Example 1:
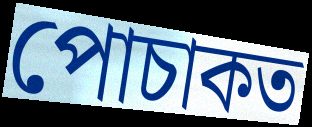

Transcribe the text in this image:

পোচাকত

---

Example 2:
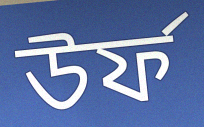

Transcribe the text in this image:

উৰ্ফ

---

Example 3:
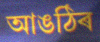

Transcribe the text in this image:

আঙঠিৰ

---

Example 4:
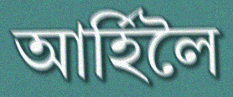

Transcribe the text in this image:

আৰ্হিলৈ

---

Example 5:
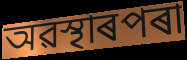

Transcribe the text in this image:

অৱস্থাৰপৰা